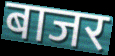
बाजर